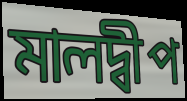
মালদ্বীপ